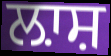
ਲ਼ਾਸ਼